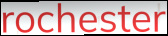
rochester